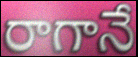
రాగానే